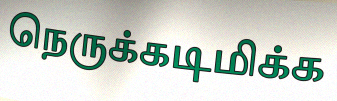
நெருக்கடிமிக்க